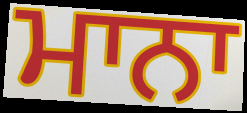
ਮਾਨਾ